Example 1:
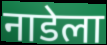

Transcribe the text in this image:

नाडेला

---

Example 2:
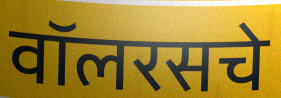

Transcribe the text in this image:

वॉलरसचे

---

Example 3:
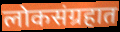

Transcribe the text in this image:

लोकसंग्रहात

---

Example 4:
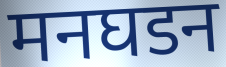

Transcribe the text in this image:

मनघडन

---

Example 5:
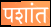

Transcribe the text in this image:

पशांत